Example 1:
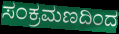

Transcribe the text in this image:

ಸಂಕ್ರಮಣದಿಂದ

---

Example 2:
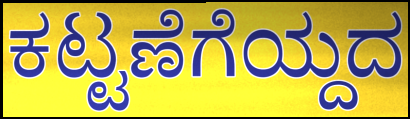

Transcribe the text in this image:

ಕಟ್ಟಣೆಗೆಯ್ದದ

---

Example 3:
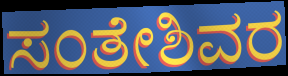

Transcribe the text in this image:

ಸಂತೇಶಿವರ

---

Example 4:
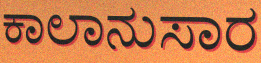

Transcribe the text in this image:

ಕಾಲಾನುಸಾರ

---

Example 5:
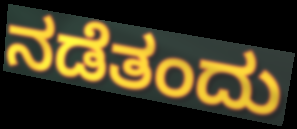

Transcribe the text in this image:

ನಡೆತಂದು